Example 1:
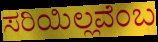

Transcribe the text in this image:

ಸರಿಯಿಲ್ಲವೆಂಬ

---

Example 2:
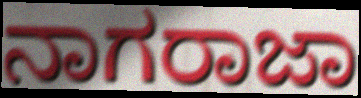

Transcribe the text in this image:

ನಾಗರಾಜಾ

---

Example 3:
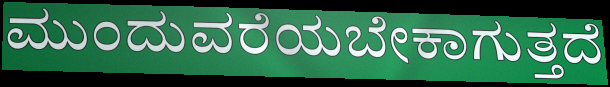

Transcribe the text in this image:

ಮುಂದುವರೆಯಬೇಕಾಗುತ್ತದೆ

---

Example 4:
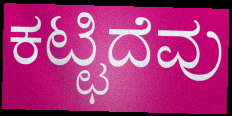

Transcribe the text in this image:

ಕಟ್ಟಿದೆವು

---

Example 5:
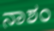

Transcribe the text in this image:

ನಾಶಂ